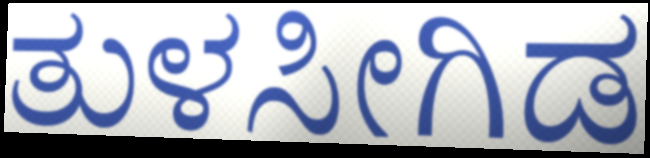
ತುಳಸೀಗಿಡ